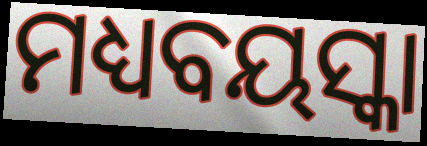
ମଧ୍ୟବୟସ୍କା